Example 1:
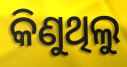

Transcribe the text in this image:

କିଣୁଥିଲୁ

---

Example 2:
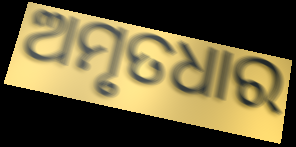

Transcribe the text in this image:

ଅମୃତଧାର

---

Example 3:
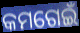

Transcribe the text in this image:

କମଗେଇଁ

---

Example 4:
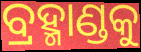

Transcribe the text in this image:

ବ୍ରହ୍ମାଣ୍ଡକୁ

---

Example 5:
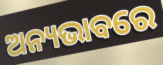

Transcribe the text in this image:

ଅନ୍ୟଭାବରେ